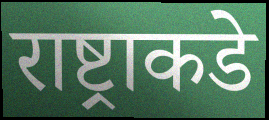
राष्ट्राकडे